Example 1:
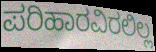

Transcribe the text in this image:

ಪರಿಹಾರವಿರಲಿಲ್ಲ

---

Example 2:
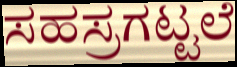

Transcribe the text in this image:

ಸಹಸ್ರಗಟ್ಟಲೆ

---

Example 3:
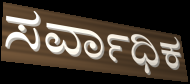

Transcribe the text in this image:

ಸರ್ವಾಧಿಕ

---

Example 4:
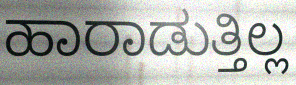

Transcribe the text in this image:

ಹಾರಾಡುತ್ತಿಲ್ಲ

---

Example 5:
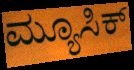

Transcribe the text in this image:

ಮ್ಯೂಸಿಕ್